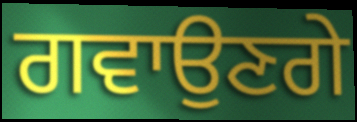
ਗਵਾਉਣਗੇ